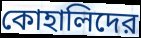
কোহালিদের